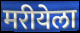
मरीयेला